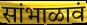
सांभाळावं